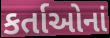
કર્તાઓનાં